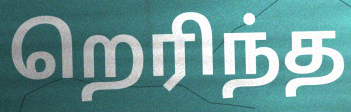
றெரிந்த